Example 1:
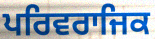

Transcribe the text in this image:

ਪਰਿਵਰਾਜਿਕ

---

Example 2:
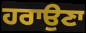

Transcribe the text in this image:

ਹਰਾਉਣਾ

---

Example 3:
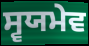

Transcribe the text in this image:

ਸ੍ਵਯਮੇਵ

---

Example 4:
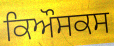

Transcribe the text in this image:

ਕਿਔਸਕਸ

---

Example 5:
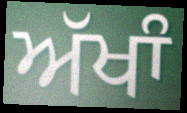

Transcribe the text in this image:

ਅੱਖਾੰ